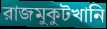
রাজমুকুটখানি